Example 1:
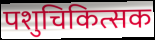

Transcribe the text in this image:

पशुचिकित्सक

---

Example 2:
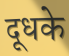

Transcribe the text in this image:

दूधके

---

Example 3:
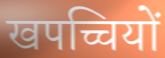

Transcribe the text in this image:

खपच्चियों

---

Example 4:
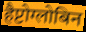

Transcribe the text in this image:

हैप्टोग्लोबिन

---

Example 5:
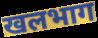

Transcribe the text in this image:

खलभाग